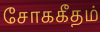
சோககீதம்